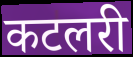
कटलरी